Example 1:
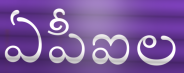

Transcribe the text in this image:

ఏపీఐల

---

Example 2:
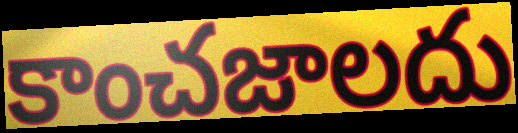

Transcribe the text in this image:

కాంచజాలదు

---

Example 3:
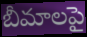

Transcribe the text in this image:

బీమాలపై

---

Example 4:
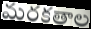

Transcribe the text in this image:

మరకతాల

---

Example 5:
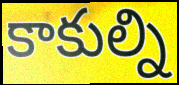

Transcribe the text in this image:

కాకుల్ని